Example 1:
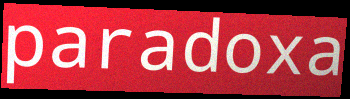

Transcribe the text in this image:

paradoxa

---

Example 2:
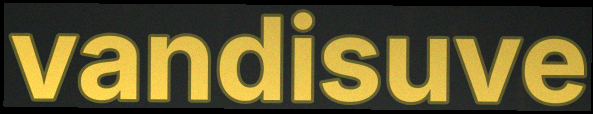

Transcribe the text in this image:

vandisuve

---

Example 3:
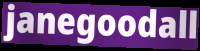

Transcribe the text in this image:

janegoodall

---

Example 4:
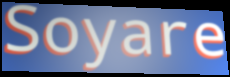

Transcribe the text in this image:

Soyare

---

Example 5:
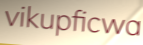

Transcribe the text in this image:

vikupficwa